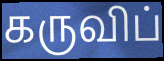
கருவிப்